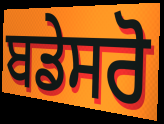
ਬਡੇਸਰੋ